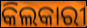
କିଲକାରୀ